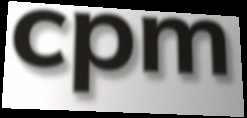
cpm